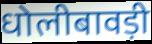
धोलीबावड़ी